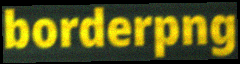
borderpng